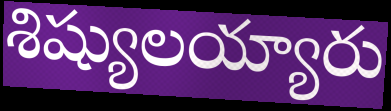
శిష్యులయ్యారు